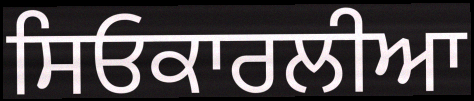
ਸਿਓਕਾਰਲੀਆ